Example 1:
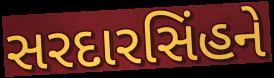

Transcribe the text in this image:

સરદારસિંહને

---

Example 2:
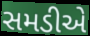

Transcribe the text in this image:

સમડીએ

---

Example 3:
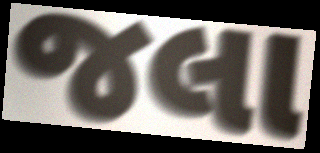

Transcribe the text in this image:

જલા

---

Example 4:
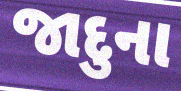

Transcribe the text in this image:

જાદુના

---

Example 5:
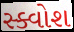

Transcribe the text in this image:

સ્ક્વોશ